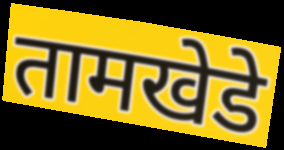
तामखेडे